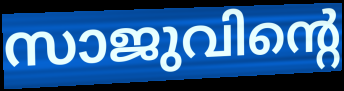
സാജുവിന്റെ